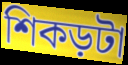
শিকড়টা